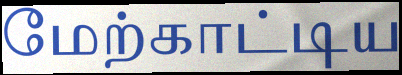
மேற்காட்டிய